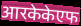
आरकेकेएफ